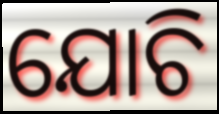
ଯୋଚି